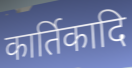
कार्तिकादि